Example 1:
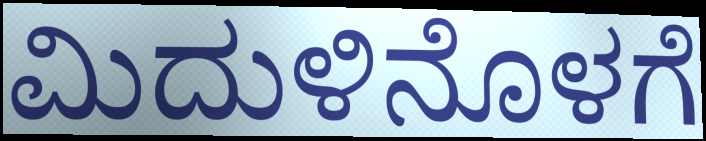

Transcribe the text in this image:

ಮಿದುಳಿನೊಳಗೆ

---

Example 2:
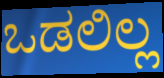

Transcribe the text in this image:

ಒಡಲಿಲ್ಲ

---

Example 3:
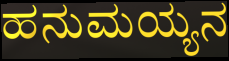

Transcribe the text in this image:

ಹನುಮಯ್ಯನ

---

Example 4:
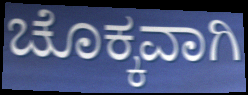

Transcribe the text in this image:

ಚೊಕ್ಕವಾಗಿ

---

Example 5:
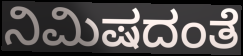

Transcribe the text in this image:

ನಿಮಿಷದಂತೆ